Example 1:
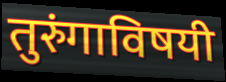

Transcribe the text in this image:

तुरुंगाविषयी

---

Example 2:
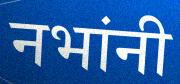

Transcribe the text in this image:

नभांनी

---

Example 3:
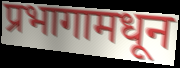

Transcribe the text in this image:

प्रभागामधून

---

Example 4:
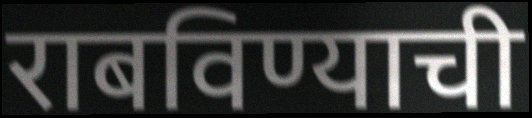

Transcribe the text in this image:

राबविण्याची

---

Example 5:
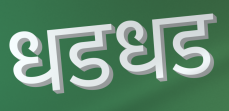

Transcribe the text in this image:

धडधड